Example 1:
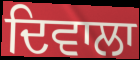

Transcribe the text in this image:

ਦਿਵਾਲਾ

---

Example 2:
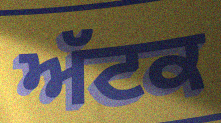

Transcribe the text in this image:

ਅੱਟਕ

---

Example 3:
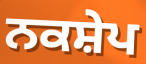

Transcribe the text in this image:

ਨਕਸ਼ੇਪ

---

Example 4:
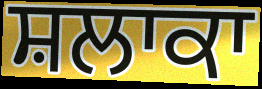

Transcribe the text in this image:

ਸ਼ਲਾਕਾ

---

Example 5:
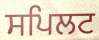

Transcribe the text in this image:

ਸਪਿਲਟ